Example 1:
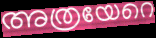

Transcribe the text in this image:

അത്രയേറെ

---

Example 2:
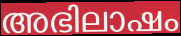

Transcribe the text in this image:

അഭിലാഷം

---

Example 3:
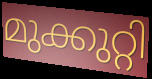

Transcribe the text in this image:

മുക്കുറ്റി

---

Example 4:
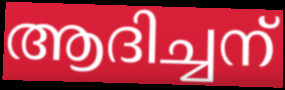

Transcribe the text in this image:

ആദിച്ചന്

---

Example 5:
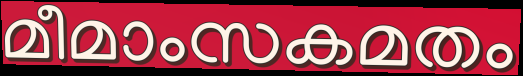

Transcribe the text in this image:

മീമാംസകമതം